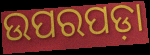
ଉପରପଡ଼ା